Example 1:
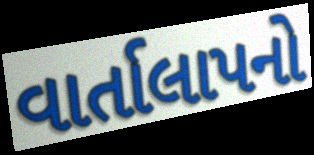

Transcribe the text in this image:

વાર્તાલાપનો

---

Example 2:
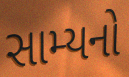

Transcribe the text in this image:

સામ્યનો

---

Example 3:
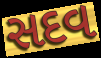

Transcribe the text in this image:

સદવ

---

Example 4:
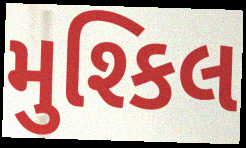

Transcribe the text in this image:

મુશ્કિલ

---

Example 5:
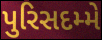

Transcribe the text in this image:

પુરિસદમ્મે